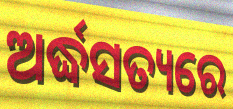
ଅର୍ଦ୍ଧସତ୍ୟରେ